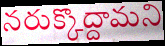
నరుక్కొద్దామని